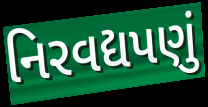
નિરવદ્યપણું